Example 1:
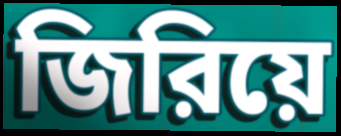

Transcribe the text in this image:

জিরিয়ে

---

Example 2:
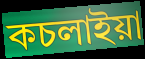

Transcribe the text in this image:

কচলাইয়া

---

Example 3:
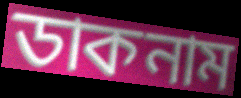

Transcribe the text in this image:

ডাকনাম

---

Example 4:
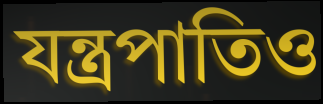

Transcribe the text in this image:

যন্ত্রপাতিও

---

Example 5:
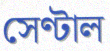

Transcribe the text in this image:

সেণ্টাল